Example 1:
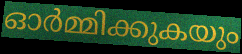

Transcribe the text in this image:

ഓർമ്മിക്കുകയും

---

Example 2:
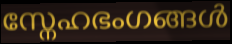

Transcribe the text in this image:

സ്നേഹഭംഗങ്ങൾ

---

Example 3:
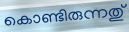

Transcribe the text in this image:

കൊണ്ടിരുന്നതു്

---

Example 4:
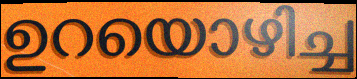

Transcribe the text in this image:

ഉറയൊഴിച്ച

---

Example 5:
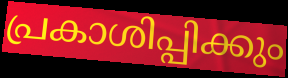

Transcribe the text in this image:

പ്രകാശിപ്പിക്കും